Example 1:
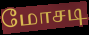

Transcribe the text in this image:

மோசடி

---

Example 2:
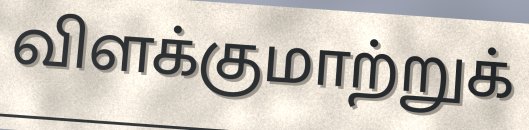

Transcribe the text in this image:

விளக்குமாற்றுக்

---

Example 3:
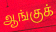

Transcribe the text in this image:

ஆங்குக்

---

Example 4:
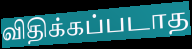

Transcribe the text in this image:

விதிக்கப்படாத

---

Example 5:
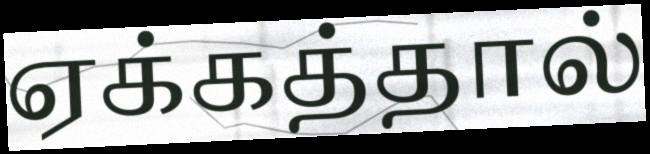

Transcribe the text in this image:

ஏக்கத்தால்